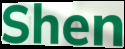
Shen